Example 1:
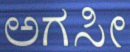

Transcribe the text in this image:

ಅಗಸೀ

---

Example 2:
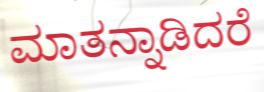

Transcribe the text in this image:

ಮಾತನ್ನಾಡಿದರೆ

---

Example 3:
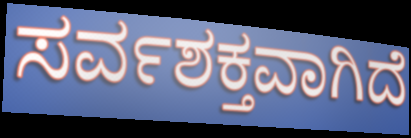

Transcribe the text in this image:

ಸರ್ವಶಕ್ತವಾಗಿದೆ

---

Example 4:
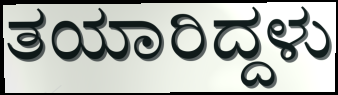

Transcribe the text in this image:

ತಯಾರಿದ್ದಳು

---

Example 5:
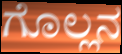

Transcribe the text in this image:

ಗೊಲ್ಲನ